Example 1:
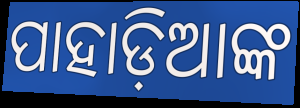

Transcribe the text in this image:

ପାହାଡ଼ିଆଙ୍କ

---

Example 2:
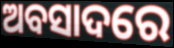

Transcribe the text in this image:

ଅବସାଦରେ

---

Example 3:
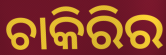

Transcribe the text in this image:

ଚାକିରିର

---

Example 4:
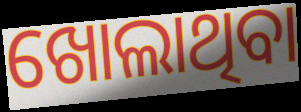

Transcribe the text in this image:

ଖୋଲାଥିବା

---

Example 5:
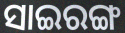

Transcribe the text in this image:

ସାଇରଙ୍ଗ